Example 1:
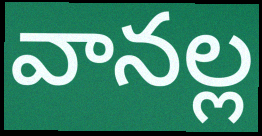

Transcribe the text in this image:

వానల్ల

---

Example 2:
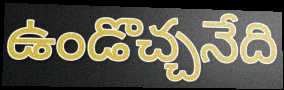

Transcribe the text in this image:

ఉండొచ్చనేది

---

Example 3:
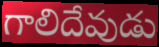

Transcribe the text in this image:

గాలిదేవుడు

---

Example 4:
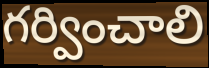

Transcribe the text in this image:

గర్వించాలి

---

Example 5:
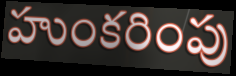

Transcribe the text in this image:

హుంకరింపు